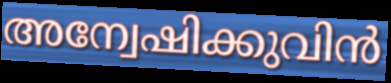
അന്വേഷിക്കുവിൻ